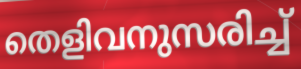
തെളിവനുസരിച്ച്